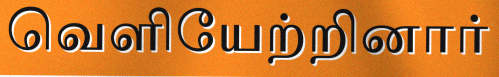
வெளியேற்றினார்